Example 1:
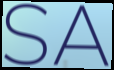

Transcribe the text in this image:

SA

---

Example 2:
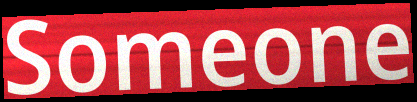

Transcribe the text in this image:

Someone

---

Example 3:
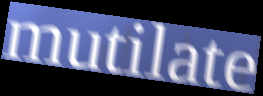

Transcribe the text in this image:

mutilate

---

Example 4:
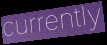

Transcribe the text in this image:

currently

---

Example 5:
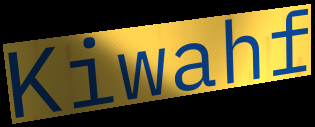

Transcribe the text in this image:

Kiwahf